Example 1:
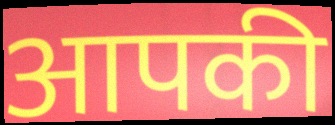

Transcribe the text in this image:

आपकी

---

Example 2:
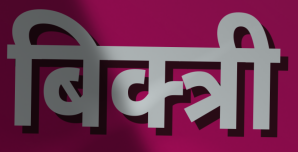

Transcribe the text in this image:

बिक्त्री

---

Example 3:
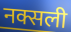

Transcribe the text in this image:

नक्सली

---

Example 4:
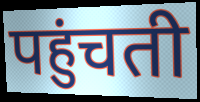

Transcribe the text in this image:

पहुंचती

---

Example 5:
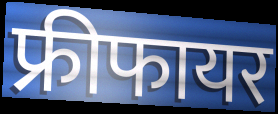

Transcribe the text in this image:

फ्रीफायर